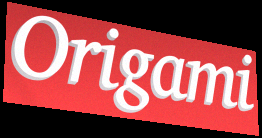
Origami